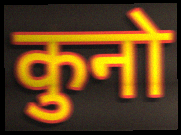
कुनो